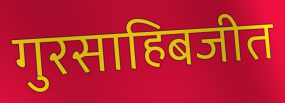
गुरसाहिबजीत